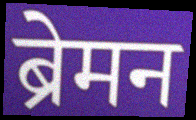
ब्रेमन